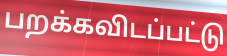
பறக்கவிடப்பட்டு